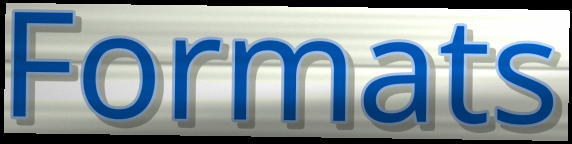
Formats